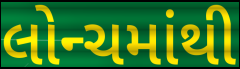
લોન્ચમાંથી